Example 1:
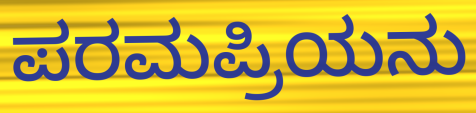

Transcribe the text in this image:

ಪರಮಪ್ರಿಯನು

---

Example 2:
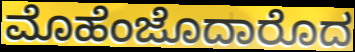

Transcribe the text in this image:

ಮೊಹೆಂಜೊದಾರೊದ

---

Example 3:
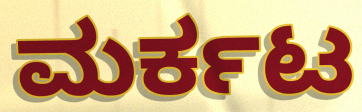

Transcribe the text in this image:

ಮರ್ಕಟ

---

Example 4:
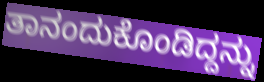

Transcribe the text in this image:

ತಾನಂದುಕೊಂಡಿದ್ದನ್ನು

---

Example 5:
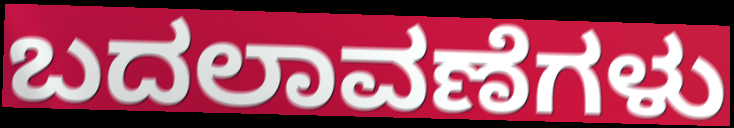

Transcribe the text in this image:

ಬದಲಾವಣೆಗಳು